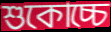
শুকোচ্চে